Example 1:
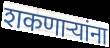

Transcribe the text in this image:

शकणार्‍यांना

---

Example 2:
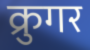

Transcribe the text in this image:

क्रुगर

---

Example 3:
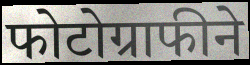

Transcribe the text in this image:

फोटोग्राफीने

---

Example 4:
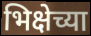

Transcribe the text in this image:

भिक्षेच्या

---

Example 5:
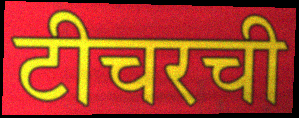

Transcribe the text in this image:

टीचरची